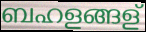
ബഹളങ്ങള്